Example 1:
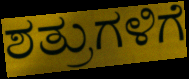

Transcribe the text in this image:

ಶತ್ರುಗಳಿಗೆ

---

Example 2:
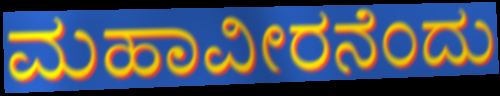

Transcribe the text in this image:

ಮಹಾವೀರನೆಂದು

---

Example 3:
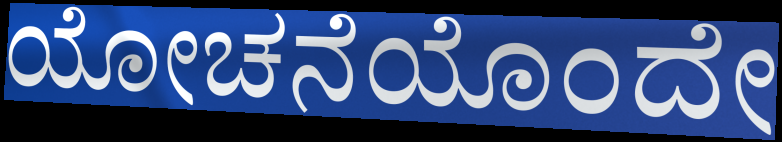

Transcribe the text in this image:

ಯೋಚನೆಯೊಂದೇ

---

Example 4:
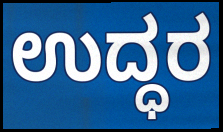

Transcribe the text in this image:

ಉದ್ಧರ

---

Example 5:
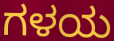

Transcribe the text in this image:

ಗಳಯ